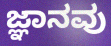
ಜ್ಞಾನವು